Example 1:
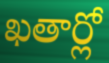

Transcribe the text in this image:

ఖతార్లో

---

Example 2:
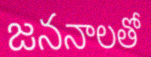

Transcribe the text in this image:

జననాలతో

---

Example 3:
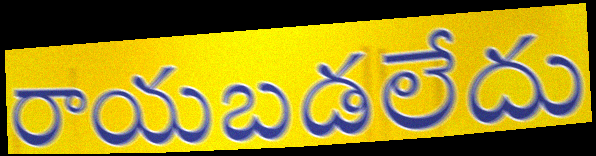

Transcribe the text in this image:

రాయబడలేదు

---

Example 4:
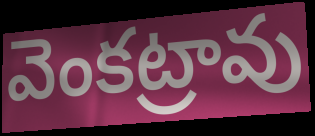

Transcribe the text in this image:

వెంకట్రావు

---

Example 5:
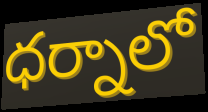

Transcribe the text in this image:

ధర్నాలో